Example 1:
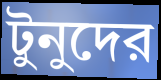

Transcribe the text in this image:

টুনুদের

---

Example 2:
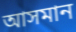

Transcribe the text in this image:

আসমান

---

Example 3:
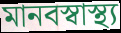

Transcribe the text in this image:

মানবস্বাস্থ্য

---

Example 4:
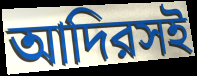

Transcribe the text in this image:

আদিরসই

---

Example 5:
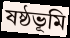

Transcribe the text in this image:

ষষ্ঠভূমি